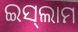
ଇସ୍‌ଲାମ